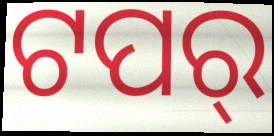
ଟପର୍